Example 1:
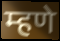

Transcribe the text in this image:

म्हणे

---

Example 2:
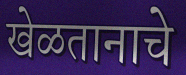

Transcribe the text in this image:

खेळतानाचे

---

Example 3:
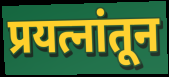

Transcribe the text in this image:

प्रयत्नांतून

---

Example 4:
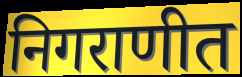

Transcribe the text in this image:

निगराणीत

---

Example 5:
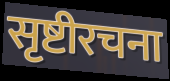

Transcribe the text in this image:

सृष्टीरचना